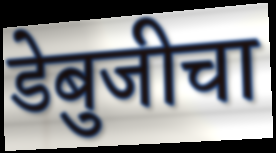
डेबुजीचा